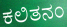
ಕಲಿತನಂ